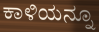
ಕಾಳಿಯನ್ನೂ